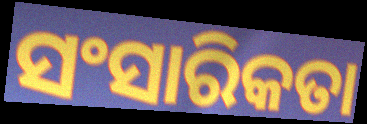
ସଂସାରିକତା